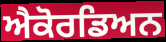
ਐਕੋਰਡਿਅਨ